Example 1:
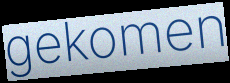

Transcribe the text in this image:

gekomen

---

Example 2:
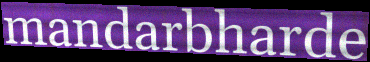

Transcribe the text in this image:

mandarbharde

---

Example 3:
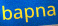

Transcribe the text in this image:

bapna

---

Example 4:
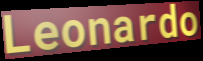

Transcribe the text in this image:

Leonardo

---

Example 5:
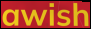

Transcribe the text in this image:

awish